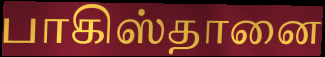
பாகிஸ்தானை